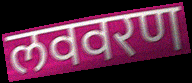
लववरण